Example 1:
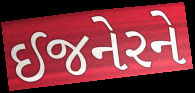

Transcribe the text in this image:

ઈજનેરને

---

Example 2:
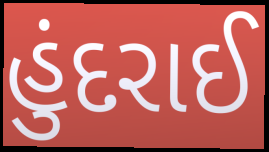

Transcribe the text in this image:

હુંદરાઈ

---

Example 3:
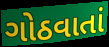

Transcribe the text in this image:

ગોઠવાતાં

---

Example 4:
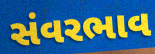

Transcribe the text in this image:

સંવરભાવ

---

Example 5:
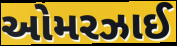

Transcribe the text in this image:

ઓમરઝાઈ